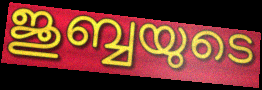
ജുബ്ബയുടെ